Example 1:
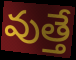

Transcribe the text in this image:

వుత్తే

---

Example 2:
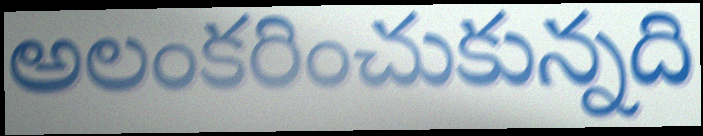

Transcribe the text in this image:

అలంకరించుకున్నది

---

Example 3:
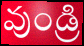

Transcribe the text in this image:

వుండ్రి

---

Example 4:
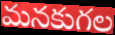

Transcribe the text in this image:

మనకుగల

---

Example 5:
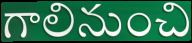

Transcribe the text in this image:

గాలినుంచి